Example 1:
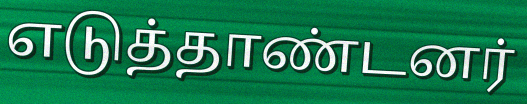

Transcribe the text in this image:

எடுத்தாண்டனர்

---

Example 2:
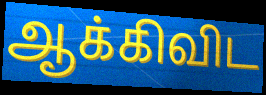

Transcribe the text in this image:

ஆக்கிவிட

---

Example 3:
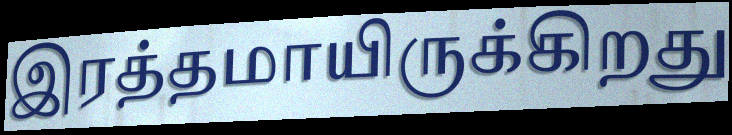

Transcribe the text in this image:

இரத்தமாயிருக்கிறது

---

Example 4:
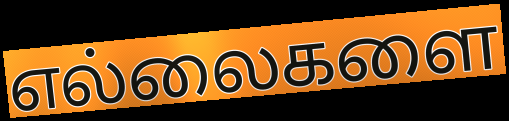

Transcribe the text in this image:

எல்லைகளை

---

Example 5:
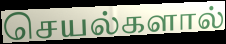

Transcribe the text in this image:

செயல்களால்